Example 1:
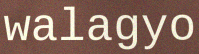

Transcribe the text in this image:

walagyo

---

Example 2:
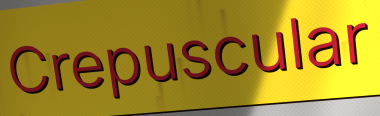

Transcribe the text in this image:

Crepuscular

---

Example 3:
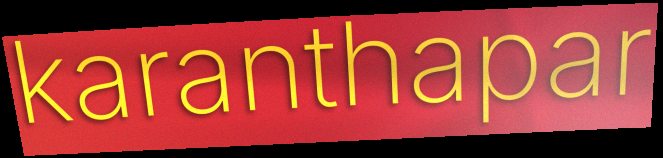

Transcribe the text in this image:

karanthapar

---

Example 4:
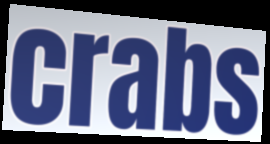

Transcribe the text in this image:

crabs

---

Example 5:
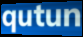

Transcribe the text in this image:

qutun